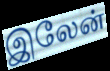
இலேன்